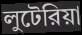
লুটেরিয়া